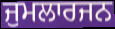
ਜੁਮਲਾਰਜਨ